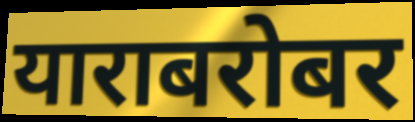
याराबरोबर